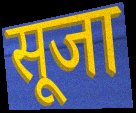
सूजा